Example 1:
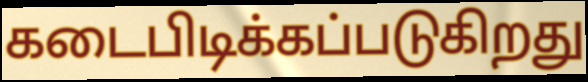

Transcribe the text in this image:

கடைபிடிக்கப்படுகிறது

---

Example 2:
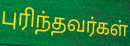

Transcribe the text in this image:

புரிந்தவர்கள்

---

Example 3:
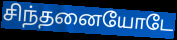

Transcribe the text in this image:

சிந்தனையோடே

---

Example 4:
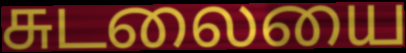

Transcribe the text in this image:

சுடலையை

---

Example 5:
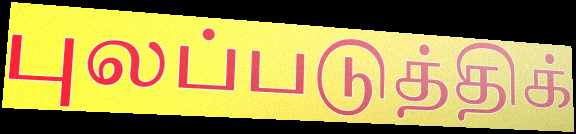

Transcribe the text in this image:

புலப்படுத்திக்